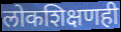
लोकशिक्षणही